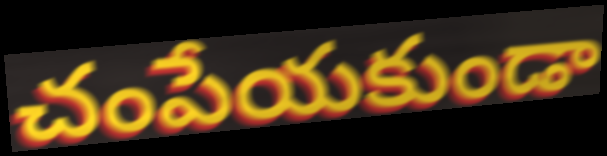
చంపేయకుండా